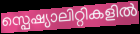
സ്പെഷ്യാലിറ്റികളിൽ